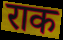
राक